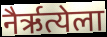
नैर्ऋत्येला